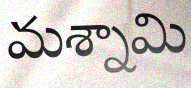
మశ్నామి